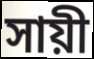
সায়ী